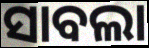
ସାବଲା